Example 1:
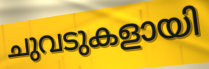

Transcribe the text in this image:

ചുവടുകളായി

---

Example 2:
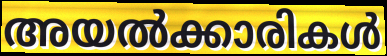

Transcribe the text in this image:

അയൽക്കാരികൾ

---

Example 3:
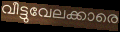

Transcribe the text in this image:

വീട്ടുവേലക്കാരെ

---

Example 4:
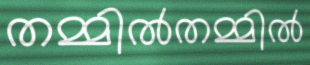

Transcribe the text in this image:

തമ്മിൽതമ്മിൽ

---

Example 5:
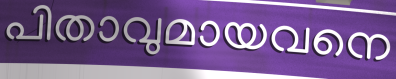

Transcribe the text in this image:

പിതാവുമായവനെ